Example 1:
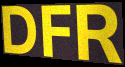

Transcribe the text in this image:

DFR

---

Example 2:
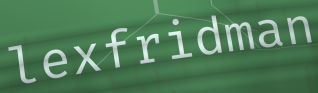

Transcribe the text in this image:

lexfridman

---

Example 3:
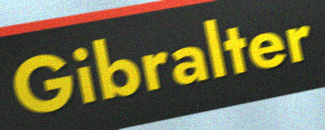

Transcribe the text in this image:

Gibralter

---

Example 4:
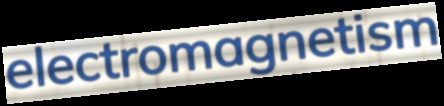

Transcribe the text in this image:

electromagnetism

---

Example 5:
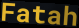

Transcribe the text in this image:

Fatah